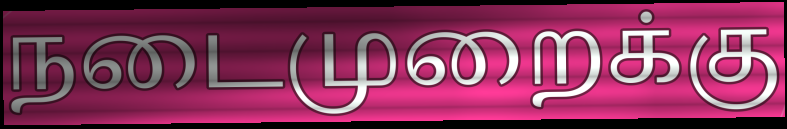
நடைமுறைக்கு